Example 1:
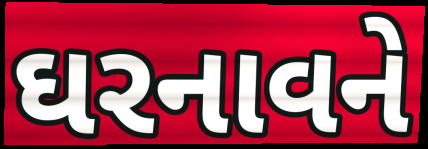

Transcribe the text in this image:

ઘરનાવને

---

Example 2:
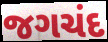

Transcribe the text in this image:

જગચંદ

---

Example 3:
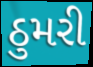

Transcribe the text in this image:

ઠુમરી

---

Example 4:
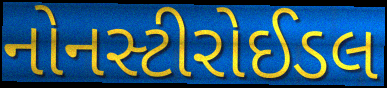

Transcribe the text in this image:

નોનસ્ટીરોઈડલ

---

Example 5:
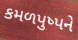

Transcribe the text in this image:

કમળપુષ્પને